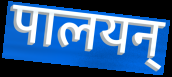
पालयन्